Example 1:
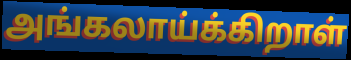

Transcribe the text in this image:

அங்கலாய்க்கிறாள்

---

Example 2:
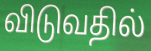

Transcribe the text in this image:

விடுவதில்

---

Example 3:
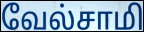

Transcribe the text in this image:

வேல்சாமி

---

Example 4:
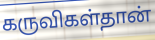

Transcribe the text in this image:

கருவிகள்தான்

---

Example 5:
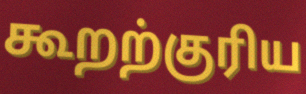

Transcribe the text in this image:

கூறற்குரிய